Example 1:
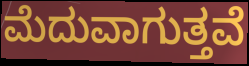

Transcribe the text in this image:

ಮೆದುವಾಗುತ್ತವೆ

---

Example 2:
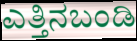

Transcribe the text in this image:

ಎತ್ತಿನಬಂಡಿ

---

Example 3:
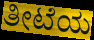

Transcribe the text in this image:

ತೀಟೆಯ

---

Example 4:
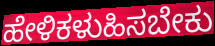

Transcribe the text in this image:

ಹೇಳಿಕಳುಹಿಸಬೇಕು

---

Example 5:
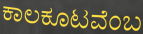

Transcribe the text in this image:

ಕಾಲಕೂಟವೆಂಬ